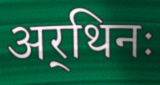
अर्थिनः